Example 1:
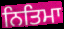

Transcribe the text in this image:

ਨਿਤਿਮਾ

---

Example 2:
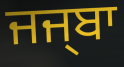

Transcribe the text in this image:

ਜਜ੍ਬਾ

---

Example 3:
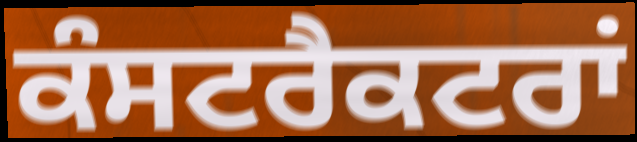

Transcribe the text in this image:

ਕੰਸਟਰੈਕਟਰਾਂ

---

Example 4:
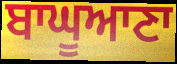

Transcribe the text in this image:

ਬਾਘੂਆਣਾ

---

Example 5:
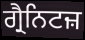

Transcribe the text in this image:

ਗ੍ਰੈਨਿਟਜ਼